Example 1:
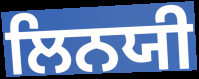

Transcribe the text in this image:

ਲਿਨਯੀ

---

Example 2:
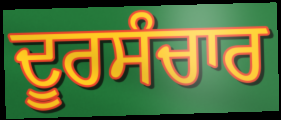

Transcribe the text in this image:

ਦੂਰਸੰਚਾਰ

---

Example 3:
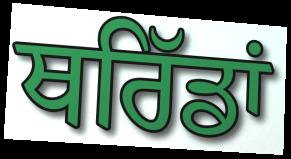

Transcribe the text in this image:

ਥਰਿੱਡਾਂ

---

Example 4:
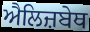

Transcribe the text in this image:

ਐਲਿਜ਼ਬੇਥ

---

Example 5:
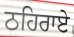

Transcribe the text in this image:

ਠਹਿਰਾਏ